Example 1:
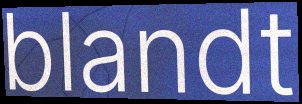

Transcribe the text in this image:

blandt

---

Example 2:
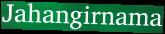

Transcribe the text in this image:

Jahangirnama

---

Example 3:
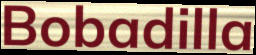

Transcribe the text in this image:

Bobadilla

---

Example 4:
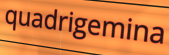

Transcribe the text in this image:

quadrigemina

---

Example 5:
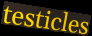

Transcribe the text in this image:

testicles